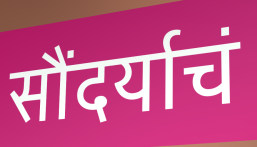
सौंदर्याचं